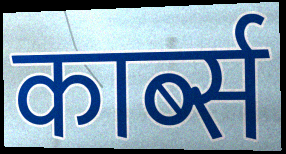
कार्ब्स